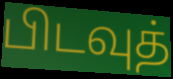
பிடவுத்